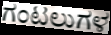
ಗಂಟಲುಗಳ